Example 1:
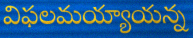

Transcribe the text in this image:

విఫలమయ్యాయన్న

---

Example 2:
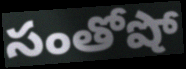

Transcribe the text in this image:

సంతోషో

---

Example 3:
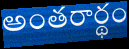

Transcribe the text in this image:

అంతరార్థం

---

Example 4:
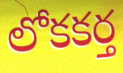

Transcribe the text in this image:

లోకకర్త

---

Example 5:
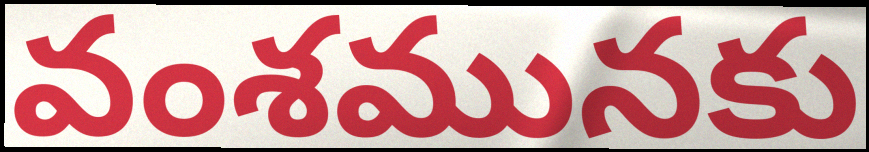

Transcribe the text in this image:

వంశమునకు